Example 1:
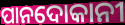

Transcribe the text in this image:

ପାନଦୋକାନୀ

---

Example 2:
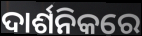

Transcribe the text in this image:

ଦାର୍ଶନିକରେ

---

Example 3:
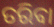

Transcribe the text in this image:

ତରିବା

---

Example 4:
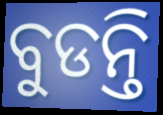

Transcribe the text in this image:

ବୁଡନ୍ତି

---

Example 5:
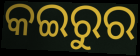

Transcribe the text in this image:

କଇରୁର